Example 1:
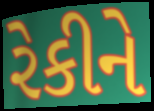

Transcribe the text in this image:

રેકીને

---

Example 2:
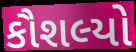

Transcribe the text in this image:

કૌશલ્યો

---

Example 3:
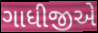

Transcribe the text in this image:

ગાધીજીએ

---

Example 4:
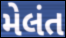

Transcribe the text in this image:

મેલંત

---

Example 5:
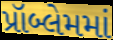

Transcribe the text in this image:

પ્રૉબ્લેમમાં